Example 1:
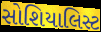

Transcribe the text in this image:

સોશિયાલિસ્ટ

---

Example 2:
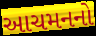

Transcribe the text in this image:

આચમનનો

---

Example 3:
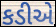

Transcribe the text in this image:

કડીએ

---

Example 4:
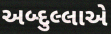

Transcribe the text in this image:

અબ્દુલ્લાએ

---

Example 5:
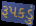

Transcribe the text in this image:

રૂપકડું